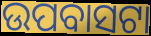
ଉପବାସଟା